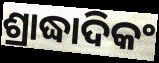
ଶ୍ରାଦ୍ଧାଦିକଂ